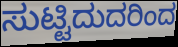
ಸುಟ್ಟಿದುದರಿಂದ